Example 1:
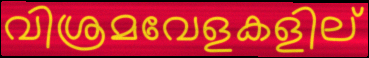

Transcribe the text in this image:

വിശ്രമവേളകളില്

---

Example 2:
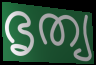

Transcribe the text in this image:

ഭൃത്യ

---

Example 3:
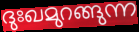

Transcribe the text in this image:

ദുഃഖമുറങ്ങുന്ന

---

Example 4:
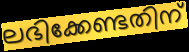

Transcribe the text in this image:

ലഭിക്കേണ്ടതിന്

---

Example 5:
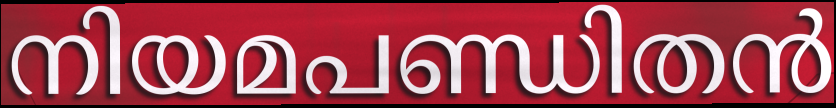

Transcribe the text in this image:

നിയമപണ്ഡിതൻ